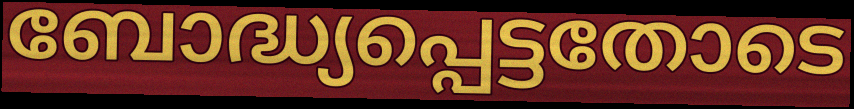
ബോദ്ധ്യപ്പെട്ടതോടെ